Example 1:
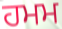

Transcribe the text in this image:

ਹਮਮ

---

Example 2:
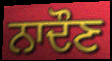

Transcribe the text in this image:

ਨਾਦੌਣ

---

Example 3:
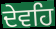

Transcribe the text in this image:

ਦੇਵਹਿ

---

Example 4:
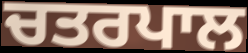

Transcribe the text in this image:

ਚਤਰਪਾਲ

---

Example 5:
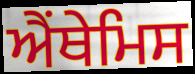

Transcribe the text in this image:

ਐਂਥੇਮਿਸ